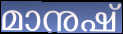
മാനുഷ്